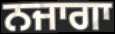
ਨਜਾਗਾ